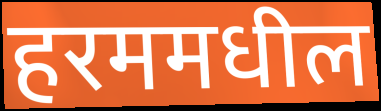
हरममधील